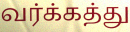
வர்க்கத்து